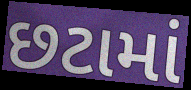
છટામાં